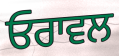
ਓਰਾਵਲ